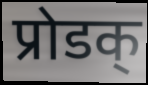
प्रोडक्